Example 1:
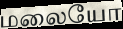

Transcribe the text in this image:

மலையோ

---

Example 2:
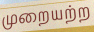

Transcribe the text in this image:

முறையற்ற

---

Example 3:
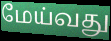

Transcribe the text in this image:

மேய்வது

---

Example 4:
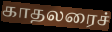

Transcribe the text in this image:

காதலரைச்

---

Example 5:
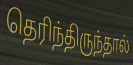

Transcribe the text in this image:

தெரிந்திருந்தால்